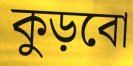
কুড়বো